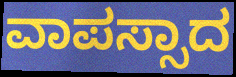
ವಾಪಸ್ಸಾದ